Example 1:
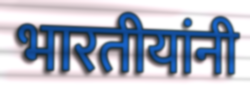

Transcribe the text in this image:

भारतीयांनी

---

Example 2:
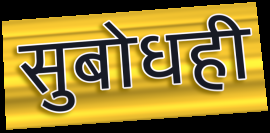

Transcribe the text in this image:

सुबोधही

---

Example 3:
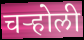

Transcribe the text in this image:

चऱ्होली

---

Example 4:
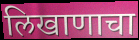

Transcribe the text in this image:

लिखाणाचा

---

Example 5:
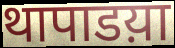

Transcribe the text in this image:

थापाडय़ा